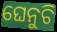
ଘେନୁଚି